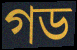
গড